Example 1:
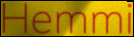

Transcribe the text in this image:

Hemmi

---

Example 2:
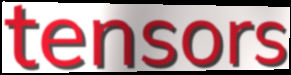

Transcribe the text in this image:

tensors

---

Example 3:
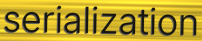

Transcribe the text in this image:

serialization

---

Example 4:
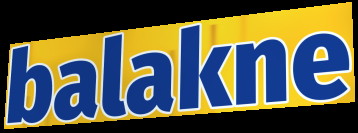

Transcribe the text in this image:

balakne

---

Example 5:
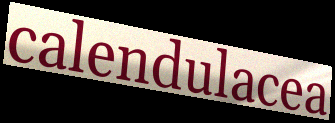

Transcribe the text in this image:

calendulacea